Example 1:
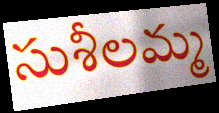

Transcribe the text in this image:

సుశీలమ్మ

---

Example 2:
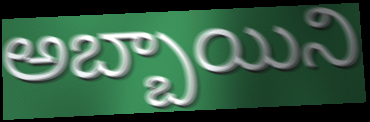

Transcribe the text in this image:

అబ్బాయిని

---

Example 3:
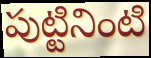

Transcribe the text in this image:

పుట్టినింటి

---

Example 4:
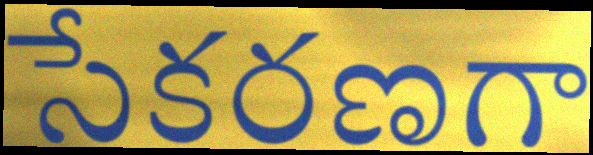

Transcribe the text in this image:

సేకరణగా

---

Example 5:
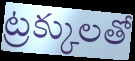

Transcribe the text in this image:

ట్రక్కులతో